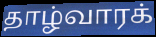
தாழ்வாரக்